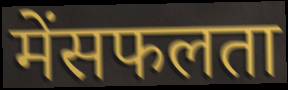
मेंसफलता